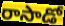
రాసాడో